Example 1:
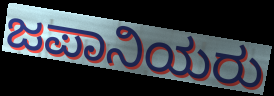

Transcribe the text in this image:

ಜಪಾನಿಯರು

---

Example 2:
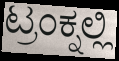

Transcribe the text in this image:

ಟ್ರಂಕ್ನಲ್ಲಿ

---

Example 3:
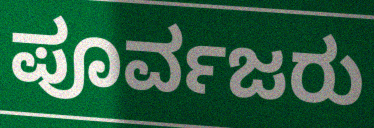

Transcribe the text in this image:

ಪೂರ್ವಜರು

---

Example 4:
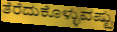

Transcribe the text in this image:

ತೆರೆದುಕೊಳ್ಳುವಷ್ಟು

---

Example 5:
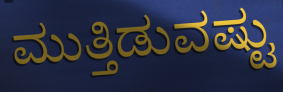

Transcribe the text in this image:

ಮುತ್ತಿಡುವಷ್ಟು